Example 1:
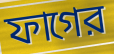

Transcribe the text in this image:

ফাগের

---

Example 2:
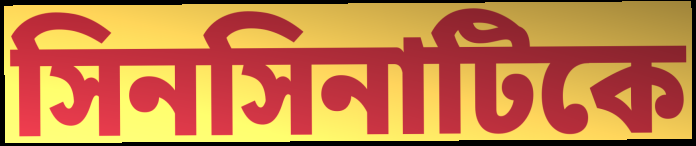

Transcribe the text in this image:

সিনসিনাটিকে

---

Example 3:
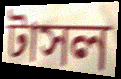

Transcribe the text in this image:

টাসল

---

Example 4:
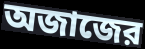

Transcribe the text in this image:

অজাজের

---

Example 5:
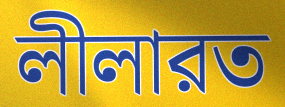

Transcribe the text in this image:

লীলারত